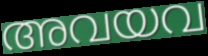
അവയവ